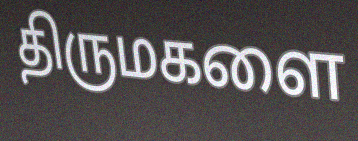
திருமகளை